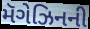
મૅગેઝિનની